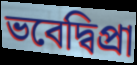
ভবেদ্বিপ্রা